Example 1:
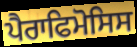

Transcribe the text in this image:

ਪੈਰਾਫਿਮੋਸਿਸ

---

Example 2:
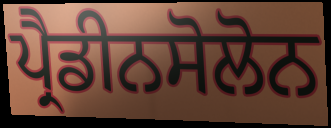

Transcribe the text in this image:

ਪ੍ਰੈਡੀਨਸੋਲੋਨ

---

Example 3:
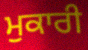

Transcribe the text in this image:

ਮੁਕਾਰੀ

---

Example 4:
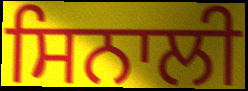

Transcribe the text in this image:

ਸਿਨਾਲੀ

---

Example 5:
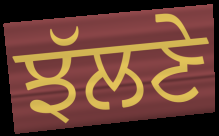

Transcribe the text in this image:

ਝੱਲਣੇ